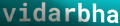
vidarbha